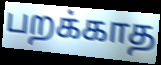
பறக்காத